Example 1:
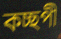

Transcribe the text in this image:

কচ্ছপী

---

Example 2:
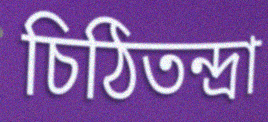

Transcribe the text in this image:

চিঠিতন্দ্রা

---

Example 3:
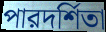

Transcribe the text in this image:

পারদর্শিতা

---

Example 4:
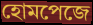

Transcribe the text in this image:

হোমপেজে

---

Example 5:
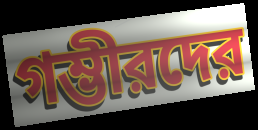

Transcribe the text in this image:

গম্ভীরদের